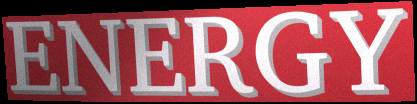
ENERGY